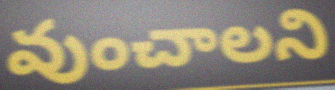
వుంచాలని